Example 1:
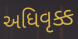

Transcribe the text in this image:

અધિવૃક્ક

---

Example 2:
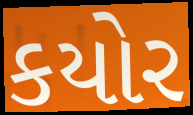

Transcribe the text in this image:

કયોર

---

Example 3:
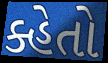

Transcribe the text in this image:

ક્હેતો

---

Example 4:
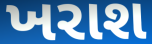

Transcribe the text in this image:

ખરાશ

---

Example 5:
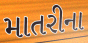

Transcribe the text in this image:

માતરીના